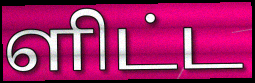
ளிட்ட